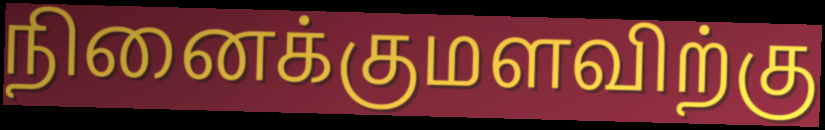
நினைக்குமளவிற்கு